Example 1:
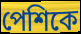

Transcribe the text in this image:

পেশিকে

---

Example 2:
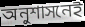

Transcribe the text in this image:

অনুশাসনেই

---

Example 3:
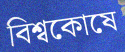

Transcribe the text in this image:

বিশ্বকোষে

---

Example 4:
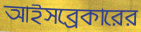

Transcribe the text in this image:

আইসব্রেকারের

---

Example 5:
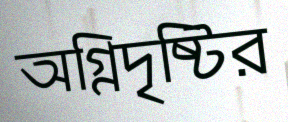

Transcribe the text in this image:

অগ্নিদৃষ্টির